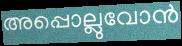
അപ്പൊല്ലുവോൻ